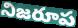
నిజరూప